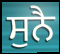
ਸੁਨੈ